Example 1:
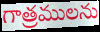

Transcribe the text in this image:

గాత్రములను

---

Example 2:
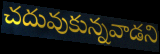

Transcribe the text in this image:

చదువుకున్నవాడని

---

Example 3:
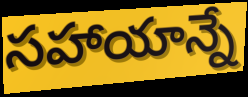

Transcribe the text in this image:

సహాయాన్నే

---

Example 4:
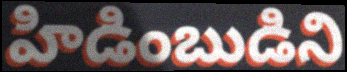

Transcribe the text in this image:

హిడింబుడిని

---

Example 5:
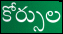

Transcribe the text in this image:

కోర్సుల